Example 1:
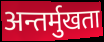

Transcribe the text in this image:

अन्तर्मुखता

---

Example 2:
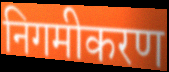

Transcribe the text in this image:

निगमीकरण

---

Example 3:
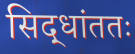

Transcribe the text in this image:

सिद्धांततः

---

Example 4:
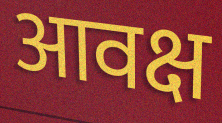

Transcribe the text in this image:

आवक्ष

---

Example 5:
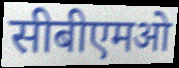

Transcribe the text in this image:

सीबीएमओ